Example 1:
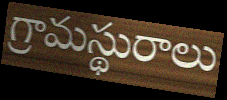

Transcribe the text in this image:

గ్రామస్థురాలు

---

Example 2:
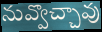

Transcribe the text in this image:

నువ్వొచ్చావు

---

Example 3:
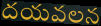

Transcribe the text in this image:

దయవలన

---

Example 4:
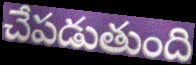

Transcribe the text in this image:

చేపడుతుంది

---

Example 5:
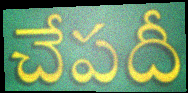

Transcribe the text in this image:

చేపదీ